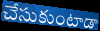
చేసుకుంటాడా